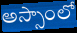
అస్సాంలో